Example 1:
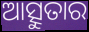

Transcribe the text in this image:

ଆତ୍ସୁତାର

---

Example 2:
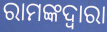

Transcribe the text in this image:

ରାମଙ୍କଦ୍ଵାରା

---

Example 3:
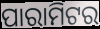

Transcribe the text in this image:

ପାରାମିଟର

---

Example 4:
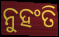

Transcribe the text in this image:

ନୁହଂତି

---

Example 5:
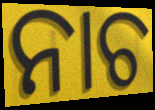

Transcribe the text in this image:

ନାଚ